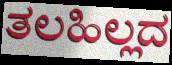
ತಲಹಿಲ್ಲದ